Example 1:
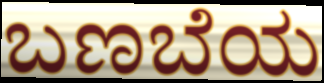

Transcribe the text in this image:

ಬಣಬೆಯ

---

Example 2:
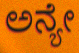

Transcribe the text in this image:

ಅನ್ಯೇ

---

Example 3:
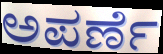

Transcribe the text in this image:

ಅಪರ್ಣೆ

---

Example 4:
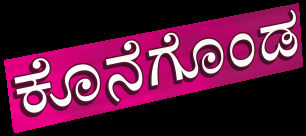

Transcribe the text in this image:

ಕೊನೆಗೊಂಡ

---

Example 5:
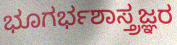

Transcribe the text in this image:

ಭೂಗರ್ಭಶಾಸ್ತ್ರಜ್ಞರ